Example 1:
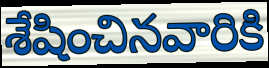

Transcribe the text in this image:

శేషించినవారికి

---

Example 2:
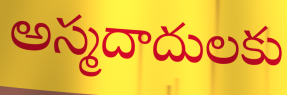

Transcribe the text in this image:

అస్మదాదులకు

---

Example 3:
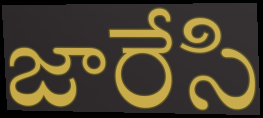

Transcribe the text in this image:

జారేసి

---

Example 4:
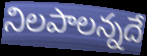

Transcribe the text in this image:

నిలపాలన్నదే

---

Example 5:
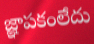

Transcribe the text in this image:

జ్ఞాపకంలేదు